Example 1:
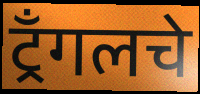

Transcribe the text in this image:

ट्रँगलचे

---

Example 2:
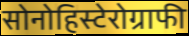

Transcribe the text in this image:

सोनोहिस्टेरोग्राफी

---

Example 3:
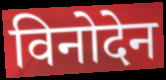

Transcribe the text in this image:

विनोदेन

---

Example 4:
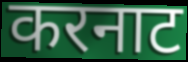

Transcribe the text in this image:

करनाट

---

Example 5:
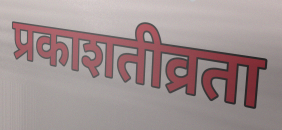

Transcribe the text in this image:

प्रकाशतीव्रता